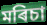
মৰিচা